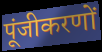
पूंजीकरणों